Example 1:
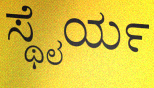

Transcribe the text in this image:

ಸ್ಥೈರ್ಯ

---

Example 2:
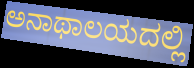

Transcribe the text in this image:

ಅನಾಥಾಲಯದಲ್ಲಿ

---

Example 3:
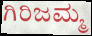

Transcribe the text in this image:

ಗಿರಿಜಮ್ಮ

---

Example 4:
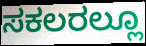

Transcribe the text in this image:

ಸಕಲರಲ್ಲೂ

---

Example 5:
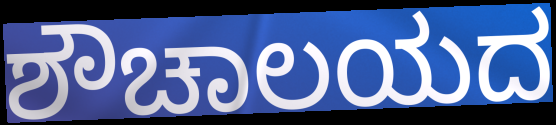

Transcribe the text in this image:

ಶೌಚಾಲಯದ